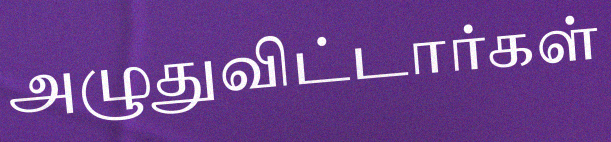
அழுதுவிட்டார்கள்